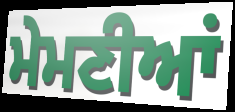
ਮੇਮਣੀਆਂ